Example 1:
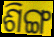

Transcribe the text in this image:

ଶିଙ୍ଗ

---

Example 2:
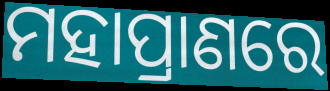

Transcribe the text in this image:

ମହାପ୍ରାଣରେ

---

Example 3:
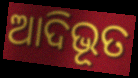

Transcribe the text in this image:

ଆଦିଭୂତ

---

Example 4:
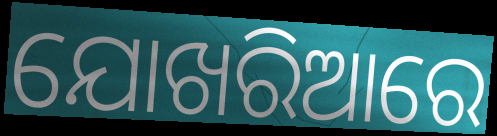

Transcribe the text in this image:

ଯୋଖରିଆରେ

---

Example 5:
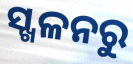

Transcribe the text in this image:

ସ୍ଖଳନରୁ